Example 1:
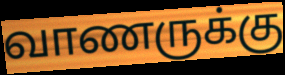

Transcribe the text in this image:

வாணருக்கு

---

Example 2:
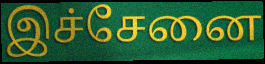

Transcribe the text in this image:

இச்சேனை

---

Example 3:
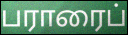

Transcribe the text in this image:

பராரைப்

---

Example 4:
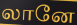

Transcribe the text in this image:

லானே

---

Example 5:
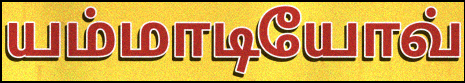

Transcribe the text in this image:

யம்மாடியோவ்